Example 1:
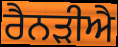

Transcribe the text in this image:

ਰੈਨੜੀਐ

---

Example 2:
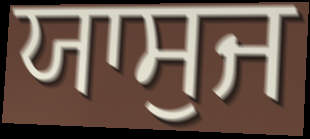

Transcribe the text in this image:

ਯਾਸੁਜ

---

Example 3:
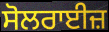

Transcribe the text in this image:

ਸੋਲਰਾਈਜ਼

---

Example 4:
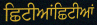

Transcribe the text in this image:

ਛਿਟੀਆਂਛਿਟੀਆਂ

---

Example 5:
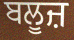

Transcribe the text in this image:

ਬਲੂਜ਼